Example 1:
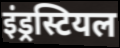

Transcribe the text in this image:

इंड्रस्टियल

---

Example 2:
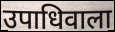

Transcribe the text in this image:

उपाधिवाला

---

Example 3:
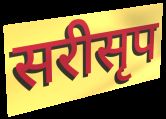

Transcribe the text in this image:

सरीसृप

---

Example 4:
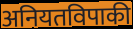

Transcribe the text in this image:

अनियतविपाकी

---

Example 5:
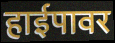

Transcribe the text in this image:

हाईपावर